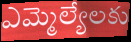
ఎమ్మెల్యేలకు